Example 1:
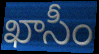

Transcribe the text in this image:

ఖాసీం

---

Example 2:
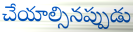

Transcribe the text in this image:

చేయాల్సినప్పుడు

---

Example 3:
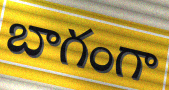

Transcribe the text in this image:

బాగంగా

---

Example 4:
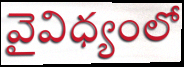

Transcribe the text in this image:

వైవిధ్యంలో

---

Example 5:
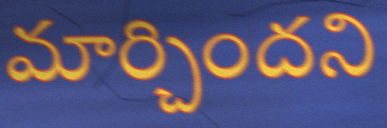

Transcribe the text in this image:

మార్చిందని